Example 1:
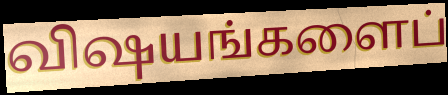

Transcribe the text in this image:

விஷயங்களைப்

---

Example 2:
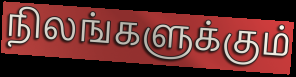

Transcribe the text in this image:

நிலங்களுக்கும்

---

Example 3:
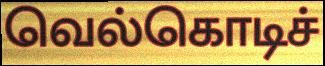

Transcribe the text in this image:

வெல்கொடிச்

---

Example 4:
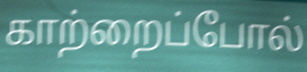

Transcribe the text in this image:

காற்றைப்போல்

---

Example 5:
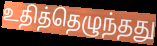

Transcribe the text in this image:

உதித்தெழுந்தது